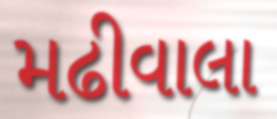
મઢીવાલા